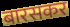
बारसकर